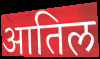
आतिल